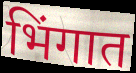
भिंगात